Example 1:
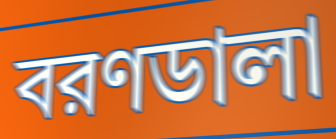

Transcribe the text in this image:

বরণডালা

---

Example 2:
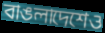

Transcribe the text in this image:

বাঙলাদেশেও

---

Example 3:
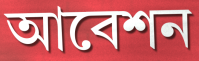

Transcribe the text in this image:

আবেশন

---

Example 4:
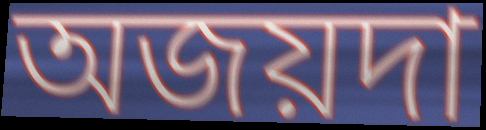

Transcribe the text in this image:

অজয়দা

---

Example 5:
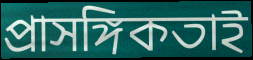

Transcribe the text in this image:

প্রাসঙ্গিকতাই